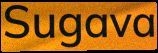
Sugava